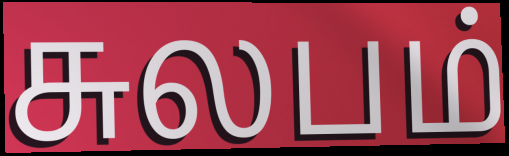
சுலபம்